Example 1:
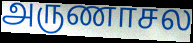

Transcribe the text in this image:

அருணாசல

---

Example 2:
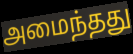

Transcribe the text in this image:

அமைந்தது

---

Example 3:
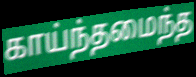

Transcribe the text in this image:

காய்ந்தமைந்த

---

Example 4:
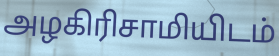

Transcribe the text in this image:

அழகிரிசாமியிடம்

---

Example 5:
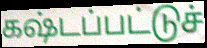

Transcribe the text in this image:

கஷ்டப்பட்டுச்